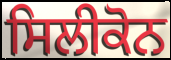
ਸਿਲੀਕੋਨ